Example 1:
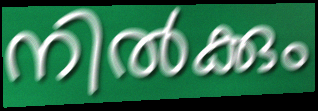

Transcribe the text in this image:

നിൽക്കും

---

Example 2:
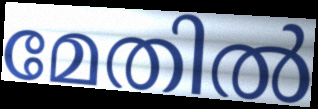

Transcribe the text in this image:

മേതിൽ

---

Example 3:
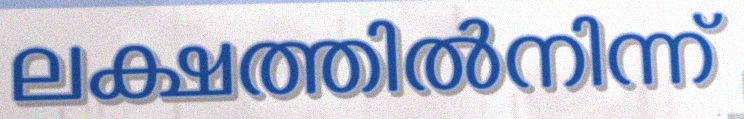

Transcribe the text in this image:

ലക്ഷത്തിൽനിന്ന്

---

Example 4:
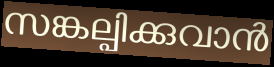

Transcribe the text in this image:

സങ്കല്പിക്കുവാൻ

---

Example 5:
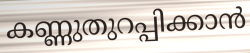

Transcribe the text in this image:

കണ്ണുതുറപ്പിക്കാൻ